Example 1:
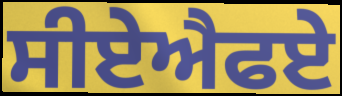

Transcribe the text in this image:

ਸੀਏਐਫਏ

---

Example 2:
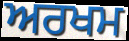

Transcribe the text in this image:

ਅਰਖਮ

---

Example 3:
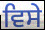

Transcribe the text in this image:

ਵਿਸੇ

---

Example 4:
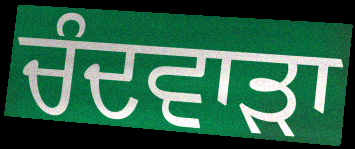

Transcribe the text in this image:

ਚੰਦਵਾੜਾ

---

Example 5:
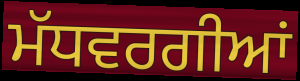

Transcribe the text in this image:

ਮੱਧਵਰਗੀਆਂ